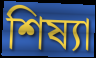
শিষ্যা